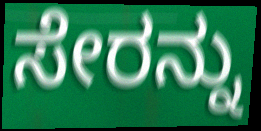
ಸೇರನ್ನು